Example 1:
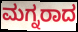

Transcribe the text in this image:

ಮಗ್ನರಾದ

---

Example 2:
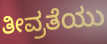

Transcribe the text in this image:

ತೀವ್ರತೆಯು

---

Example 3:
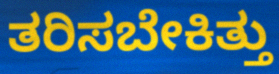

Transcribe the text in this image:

ತರಿಸಬೇಕಿತ್ತು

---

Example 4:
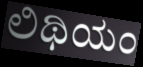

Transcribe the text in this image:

ಲಿಥಿಯಂ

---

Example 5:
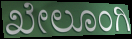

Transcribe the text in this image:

ಖೇಲೂಂಗಿ